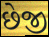
છેજી